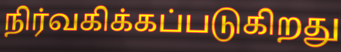
நிர்வகிக்கப்படுகிறது